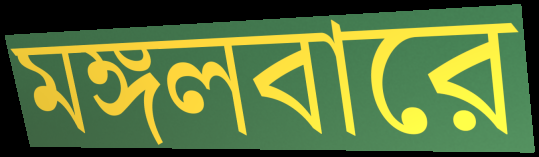
মঙ্গলবারে